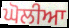
ਘੋਲੀਆ